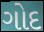
ગોદ